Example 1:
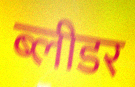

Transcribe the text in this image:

ब्लीडर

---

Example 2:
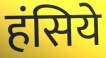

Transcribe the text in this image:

हंसिये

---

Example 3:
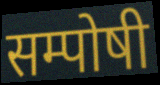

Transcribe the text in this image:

सम्पोषी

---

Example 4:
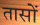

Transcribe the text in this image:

तासों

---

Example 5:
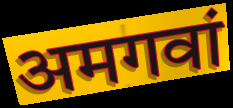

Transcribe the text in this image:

अमगवां